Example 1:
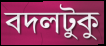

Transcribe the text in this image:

বদলটুকু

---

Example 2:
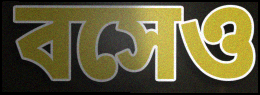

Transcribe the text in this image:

বসেও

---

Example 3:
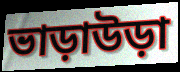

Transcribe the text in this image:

ভাড়াউড়া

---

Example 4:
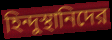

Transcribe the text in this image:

হিন্দুস্থানিদের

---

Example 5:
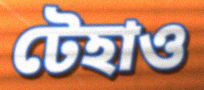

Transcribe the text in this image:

টেহাও